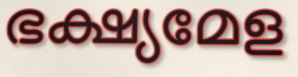
ഭക്ഷ്യമേള